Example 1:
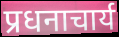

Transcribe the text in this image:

प्रधनाचार्य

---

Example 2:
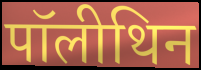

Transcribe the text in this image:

पॉलीथिन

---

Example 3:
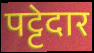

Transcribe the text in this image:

पट्टेदार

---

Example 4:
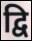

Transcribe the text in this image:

द्वि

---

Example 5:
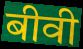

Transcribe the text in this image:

बीवी